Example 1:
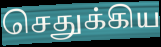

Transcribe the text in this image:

செதுக்கிய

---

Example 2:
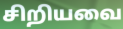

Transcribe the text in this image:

சிறியவை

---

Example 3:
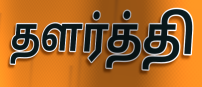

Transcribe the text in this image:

தளர்த்தி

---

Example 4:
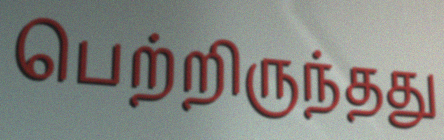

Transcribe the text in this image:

பெற்றிருந்தது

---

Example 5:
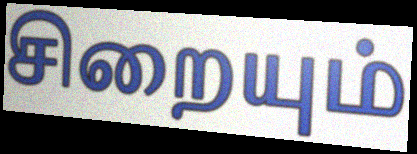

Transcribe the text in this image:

சிறையும்